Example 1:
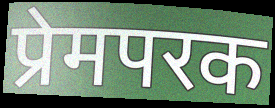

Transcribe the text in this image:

प्रेमपरक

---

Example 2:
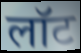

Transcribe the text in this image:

लॉट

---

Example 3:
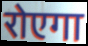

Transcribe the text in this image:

रोएगा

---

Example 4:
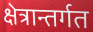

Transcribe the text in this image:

क्षेत्रान्तर्गत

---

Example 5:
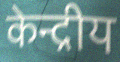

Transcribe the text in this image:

केन्‍द्रीय